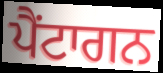
ਪੈਂਟਾਗਨ